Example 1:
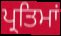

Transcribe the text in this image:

ਪ੍ਰਤਿਮਾਂ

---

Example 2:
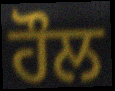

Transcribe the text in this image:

ਹੌਲ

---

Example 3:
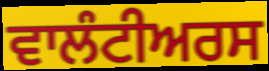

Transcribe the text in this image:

ਵਾਲੰਟੀਅਰਸ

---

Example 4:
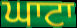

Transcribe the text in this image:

ਘਾਟਾ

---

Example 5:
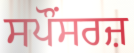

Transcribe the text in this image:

ਸਪੌਂਸਰਜ਼